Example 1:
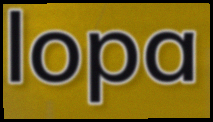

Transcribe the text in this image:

lopa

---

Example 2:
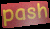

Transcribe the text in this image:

pash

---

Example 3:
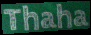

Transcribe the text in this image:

Thaha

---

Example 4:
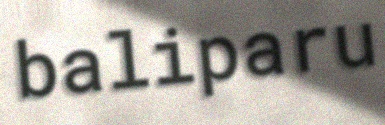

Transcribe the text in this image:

baliparu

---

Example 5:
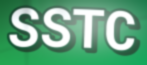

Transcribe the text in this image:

SSTC